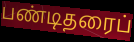
பண்டிதரைப்